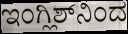
ಇಂಗ್ಲಿಶ್‌ನಿಂದ